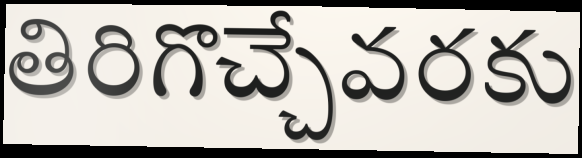
తిరిగొచ్చేవరకు